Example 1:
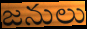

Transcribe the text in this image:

జనులు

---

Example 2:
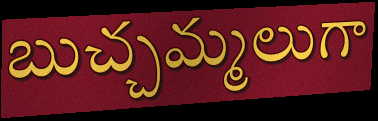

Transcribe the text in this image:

బుచ్చమ్మలుగా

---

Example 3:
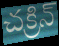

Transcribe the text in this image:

చక్రిన్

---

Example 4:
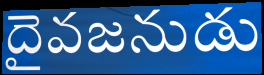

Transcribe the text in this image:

దైవజనుడు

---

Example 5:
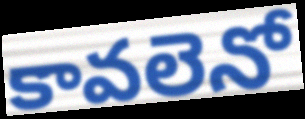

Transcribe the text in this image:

కావలెనో